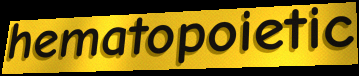
hematopoietic